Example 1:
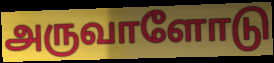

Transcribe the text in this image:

அருவாளோடு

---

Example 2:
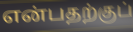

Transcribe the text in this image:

என்பதற்குப்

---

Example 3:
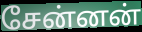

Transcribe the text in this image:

சேன்னன்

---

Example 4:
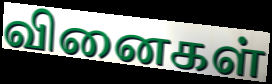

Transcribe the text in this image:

வினைகள்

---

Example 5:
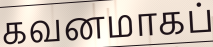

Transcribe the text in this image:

கவனமாகப்